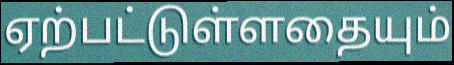
ஏற்பட்டுள்ளதையும்